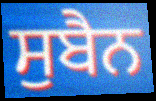
ਸੁਬੈਨ